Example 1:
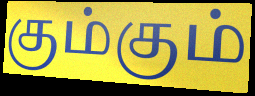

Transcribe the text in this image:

கும்கும்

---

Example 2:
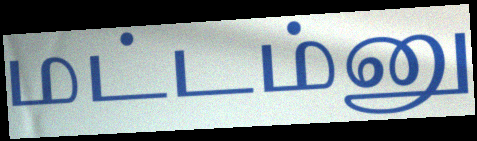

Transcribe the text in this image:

மட்டம்னு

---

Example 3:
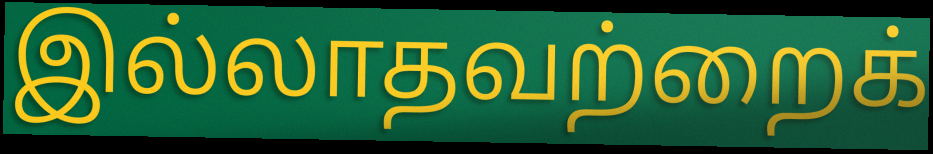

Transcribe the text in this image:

இல்லாதவற்றைக்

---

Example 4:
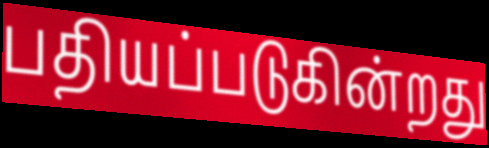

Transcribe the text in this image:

பதியப்படுகின்றது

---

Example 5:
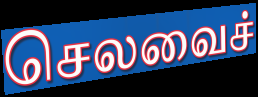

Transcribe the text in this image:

செலவைச்